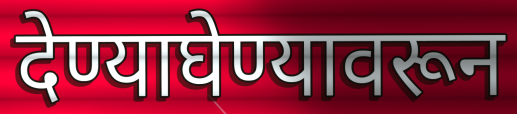
देण्याघेण्यावरून